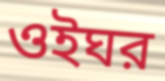
ওইঘর